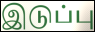
இடுப்பு